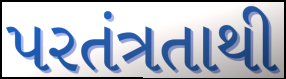
પરતંત્રતાથી